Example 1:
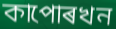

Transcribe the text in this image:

কাপোৰখন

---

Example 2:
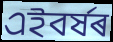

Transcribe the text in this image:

এইবৰ্ষৰ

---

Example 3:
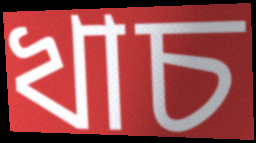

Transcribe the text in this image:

খাচ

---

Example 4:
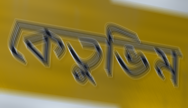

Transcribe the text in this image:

কেতুভিম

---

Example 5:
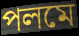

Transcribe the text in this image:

পলমে